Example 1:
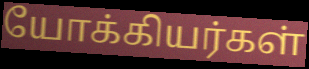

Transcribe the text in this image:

யோக்கியர்கள்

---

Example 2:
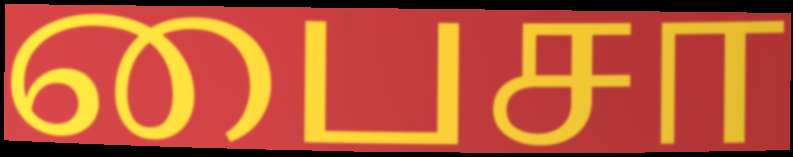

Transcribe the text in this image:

பைசா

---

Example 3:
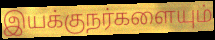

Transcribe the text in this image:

இயக்குநர்களையும்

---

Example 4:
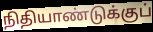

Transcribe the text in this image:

நிதியாண்டுக்குப்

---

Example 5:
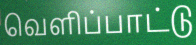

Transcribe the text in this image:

வெளிப்பாட்டு